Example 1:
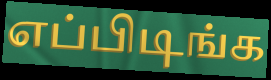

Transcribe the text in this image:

எப்பிடிங்க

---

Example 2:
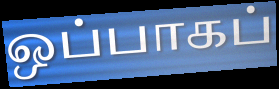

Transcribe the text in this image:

ஒப்பாகப்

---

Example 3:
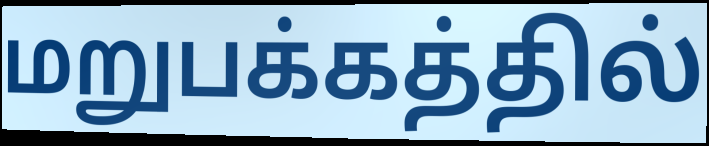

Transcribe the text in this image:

மறுபக்கத்தில்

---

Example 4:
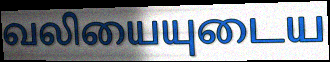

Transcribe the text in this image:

வலியையுடைய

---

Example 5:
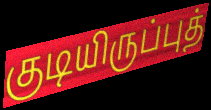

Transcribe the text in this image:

குடியிருப்புத்